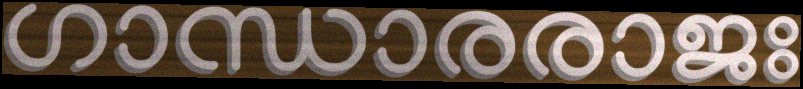
ഗാന്ധാരരാജഃ